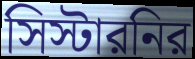
সিস্টারনির